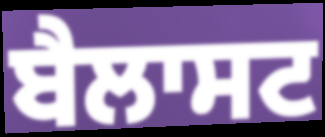
ਬੈਲਾਸਟ